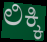
ಲಿಕ್ಕಿ